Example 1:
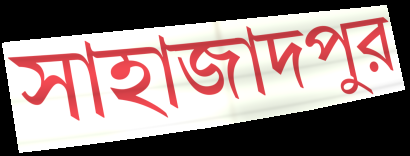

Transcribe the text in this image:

সাহাজাদপুর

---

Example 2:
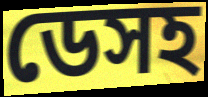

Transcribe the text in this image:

ডেসহ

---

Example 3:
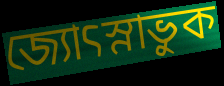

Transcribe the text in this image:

জ্যোৎস্নাভুক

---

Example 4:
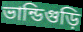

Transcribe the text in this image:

ভান্ডিগুড়ি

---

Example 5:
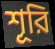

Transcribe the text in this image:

শূরি